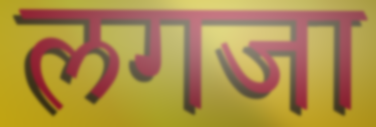
लगजा